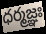
ధర్మజ్ఞః